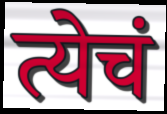
त्येचं